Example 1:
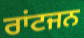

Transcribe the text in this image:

ਰਾਂਟਜਨ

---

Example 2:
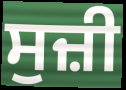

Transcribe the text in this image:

ਸੁਜ਼ੀ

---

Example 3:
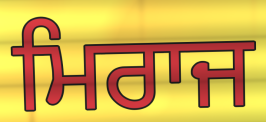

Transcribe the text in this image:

ਮਿਰਾਜ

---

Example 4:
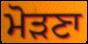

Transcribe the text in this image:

ਮੋੜਣਾ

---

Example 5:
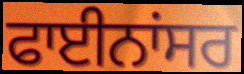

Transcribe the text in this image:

ਫਾਈਨਾਂਸਰ